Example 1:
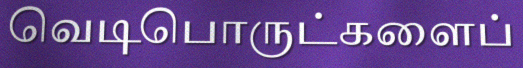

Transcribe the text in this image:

வெடிபொருட்களைப்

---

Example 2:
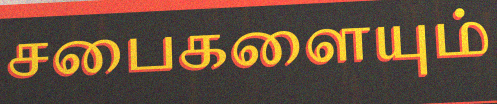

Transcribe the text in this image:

சபைகளையும்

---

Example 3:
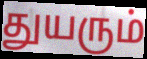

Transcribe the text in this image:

துயரும்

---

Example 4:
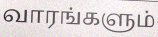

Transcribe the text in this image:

வாரங்களும்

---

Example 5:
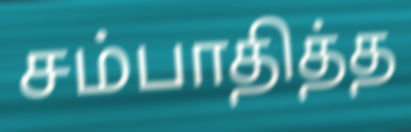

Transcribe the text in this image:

சம்பாதித்த